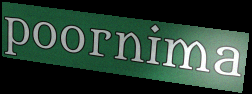
poornima